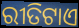
ରୀତିଟାଏ